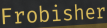
Frobisher